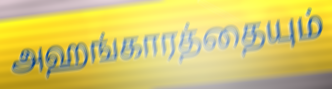
அஹங்காரத்தையும்